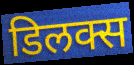
डिलक्स